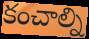
కంచాల్ని